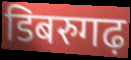
डिबरुगढ़